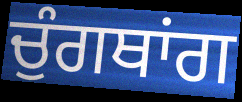
ਚੁੰਗਥਾਂਗ